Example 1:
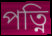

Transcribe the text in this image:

পত্নি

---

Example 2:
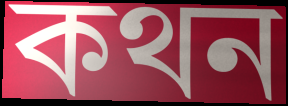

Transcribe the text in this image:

কথন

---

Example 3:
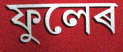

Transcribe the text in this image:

ফুলেৰ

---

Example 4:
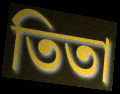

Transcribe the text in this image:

তিতা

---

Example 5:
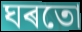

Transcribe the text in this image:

ঘৰতো